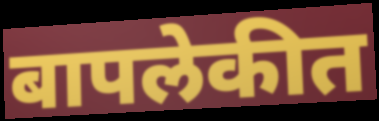
बापलेकीत